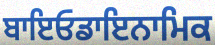
ਬਾਇਓਡਾਇਨਾਮਿਕ